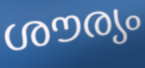
ശൗര്യം